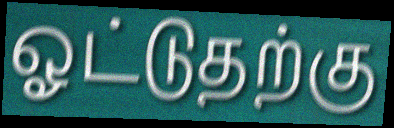
ஓட்டுதற்கு